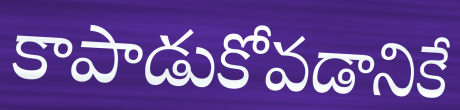
కాపాడుకోవడానికే